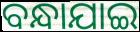
ବନ୍ଧାଯାଇ